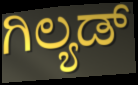
ಗಿಲ್ಯಡ್